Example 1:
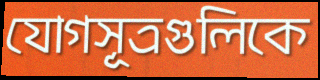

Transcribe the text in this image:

যোগসূত্রগুলিকে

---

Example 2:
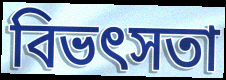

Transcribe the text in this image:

বিভৎসতা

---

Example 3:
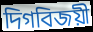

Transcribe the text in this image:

দিগবিজয়ী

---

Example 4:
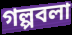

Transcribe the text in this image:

গল্পবলা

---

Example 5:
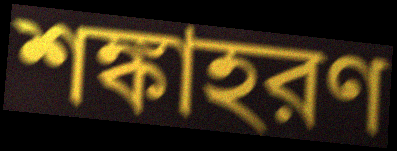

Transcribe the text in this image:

শঙ্কাহরণ